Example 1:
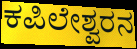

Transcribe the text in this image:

ಕಪಿಲೇಶ್ವರನ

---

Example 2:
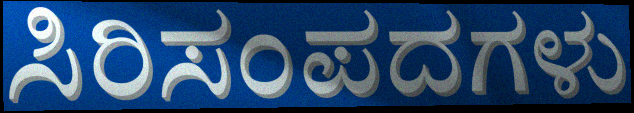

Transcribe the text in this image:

ಸಿರಿಸಂಪದಗಳು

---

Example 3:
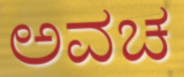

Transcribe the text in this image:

ಅವಚ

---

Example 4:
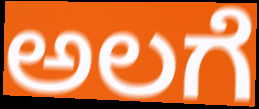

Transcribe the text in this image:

ಅಲಗೆ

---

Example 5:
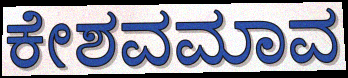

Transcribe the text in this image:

ಕೇಶವಮಾವ